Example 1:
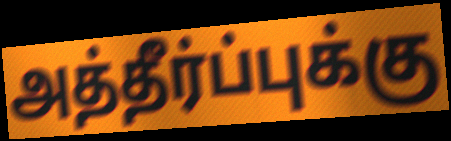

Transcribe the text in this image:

அத்தீர்ப்புக்கு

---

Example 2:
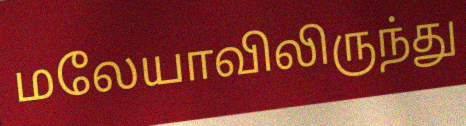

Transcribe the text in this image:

மலேயாவிலிருந்து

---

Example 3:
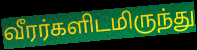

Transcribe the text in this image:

வீரர்களிடமிருந்து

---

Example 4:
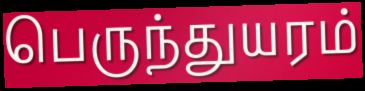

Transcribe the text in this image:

பெருந்துயரம்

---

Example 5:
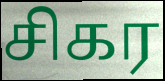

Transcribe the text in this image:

சிகர